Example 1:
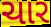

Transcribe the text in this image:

ચાર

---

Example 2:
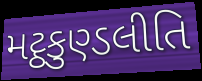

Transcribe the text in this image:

મટ્ઠકુણ્ડલીતિ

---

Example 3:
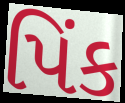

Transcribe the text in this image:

પિંક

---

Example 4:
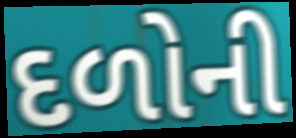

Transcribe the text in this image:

દળોની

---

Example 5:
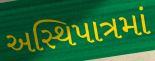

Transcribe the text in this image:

અસ્થિપાત્રમાં